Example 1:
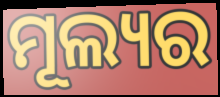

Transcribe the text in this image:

ମୂଲ୍ୟର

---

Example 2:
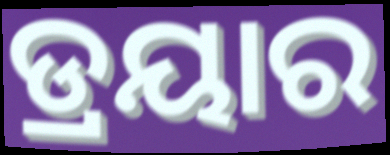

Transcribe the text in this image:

ଡ୍ରୟାର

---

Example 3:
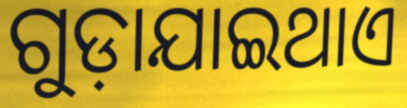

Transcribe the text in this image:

ଗୁଡ଼ାଯାଇଥାଏ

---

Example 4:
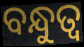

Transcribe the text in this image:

ବନ୍ଧୁତ୍ୱ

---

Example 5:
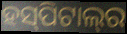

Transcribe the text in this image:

ହସ୍‍ପିଟାଲ୍‍ର